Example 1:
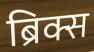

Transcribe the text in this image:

ब्रिक्स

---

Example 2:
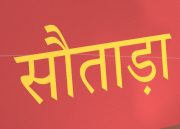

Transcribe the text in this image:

सौताड़ा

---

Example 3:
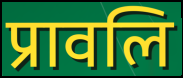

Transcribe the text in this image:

प्रावलि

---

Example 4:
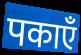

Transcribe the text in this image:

पकाएँ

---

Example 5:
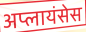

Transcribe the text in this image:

अप्लायंसेस